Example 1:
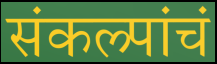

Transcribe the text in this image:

संकल्पांचं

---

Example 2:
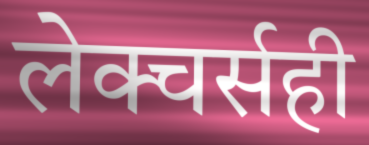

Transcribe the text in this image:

लेक्चर्सही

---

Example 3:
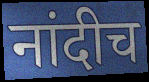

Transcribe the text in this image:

नांदीच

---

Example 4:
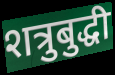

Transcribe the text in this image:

शत्रुबुद्धी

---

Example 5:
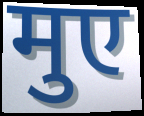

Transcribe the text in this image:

मुए